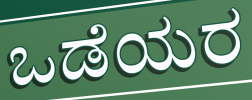
ಒಡೆಯರ